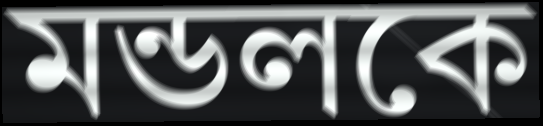
মন্ডলকে